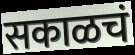
सकाळचं